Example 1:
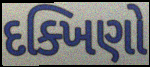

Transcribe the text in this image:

દક્ખિણો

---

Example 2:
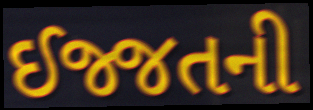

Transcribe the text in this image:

ઈજ્જતની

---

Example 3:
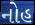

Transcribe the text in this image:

નોહ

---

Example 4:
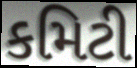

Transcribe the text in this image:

કમિટી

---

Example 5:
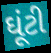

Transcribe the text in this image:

ઘૂંટી